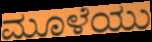
ಮೂಳೆಯು